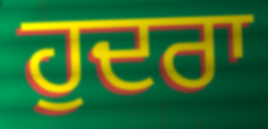
ਹੁਦਰਾ